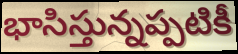
భాసిస్తున్నప్పటికీ